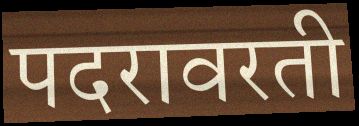
पदरावरती